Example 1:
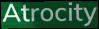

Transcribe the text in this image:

Atrocity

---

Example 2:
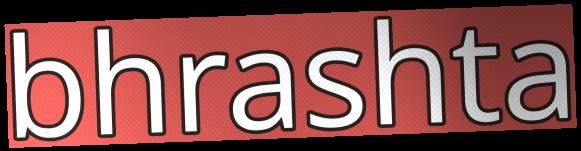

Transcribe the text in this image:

bhrashta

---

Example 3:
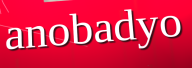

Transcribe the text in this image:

anobadyo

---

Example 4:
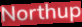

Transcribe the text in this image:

Northup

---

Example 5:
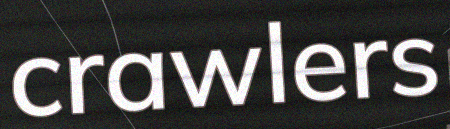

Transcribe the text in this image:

crawlers